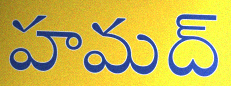
హమద్